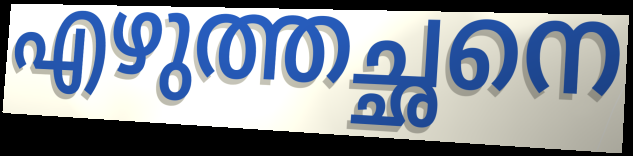
എഴുത്തച്ഛനെ